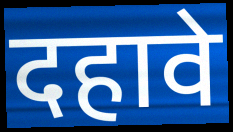
दहावे